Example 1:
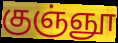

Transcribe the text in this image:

குஞ்ஞூ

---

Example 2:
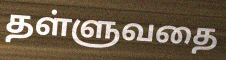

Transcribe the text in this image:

தள்ளுவதை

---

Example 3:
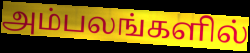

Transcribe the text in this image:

அம்பலங்களில்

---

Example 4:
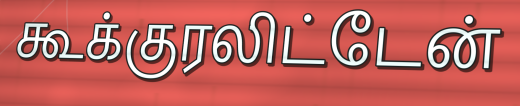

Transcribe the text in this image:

கூக்குரலிட்டேன்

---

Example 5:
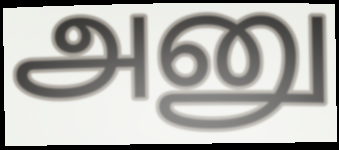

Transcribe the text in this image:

அனு